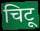
चिटू